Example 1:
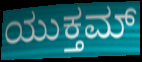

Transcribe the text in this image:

ಯುಕ್ತಮ್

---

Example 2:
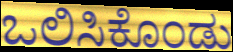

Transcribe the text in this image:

ಒಲಿಸಿಕೊಂಡು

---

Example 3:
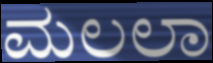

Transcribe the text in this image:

ಮಲಲಾ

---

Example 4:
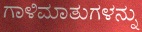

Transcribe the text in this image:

ಗಾಳಿಮಾತುಗಳನ್ನು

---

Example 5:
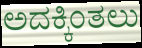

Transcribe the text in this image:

ಅದಕ್ಕಿಂತಲು